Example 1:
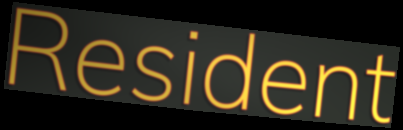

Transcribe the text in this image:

Resident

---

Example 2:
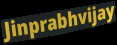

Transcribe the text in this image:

Jinprabhvijay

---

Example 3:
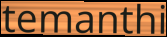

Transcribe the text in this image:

temanthi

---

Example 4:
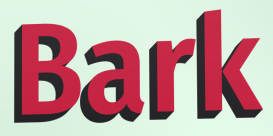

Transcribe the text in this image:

Bark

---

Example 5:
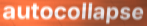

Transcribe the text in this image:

autocollapse